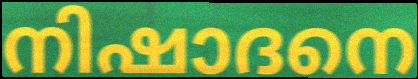
നിഷാദനെ